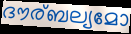
ദൗര്ബല്യമോ